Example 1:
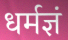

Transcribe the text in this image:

धर्मज्ञं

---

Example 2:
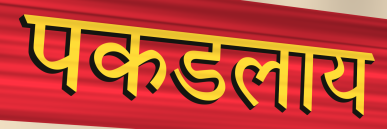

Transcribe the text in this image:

पकडलाय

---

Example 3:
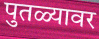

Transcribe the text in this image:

पुतळ्यावर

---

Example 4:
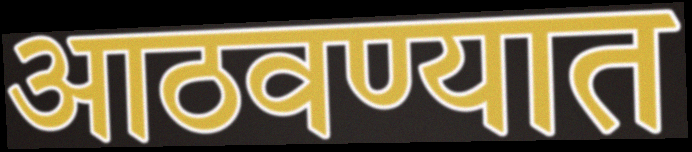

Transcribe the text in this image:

आठवण्यात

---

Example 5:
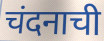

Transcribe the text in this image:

चंदनाची